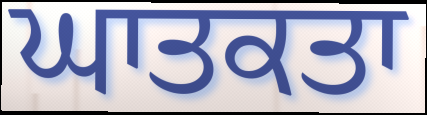
ਘਾਤਕਤਾ